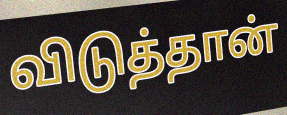
விடுத்தான்